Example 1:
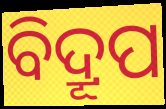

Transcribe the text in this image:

ବିଦ୍ରୂପ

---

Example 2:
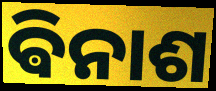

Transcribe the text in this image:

ଵିନାଶ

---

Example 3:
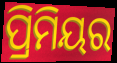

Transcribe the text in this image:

ପ୍ରିମିୟର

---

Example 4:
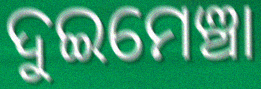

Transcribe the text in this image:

ଦୁଇମେଞ୍ଚା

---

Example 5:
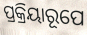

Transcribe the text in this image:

ପ୍ରକ୍ରିୟାରୂପେ